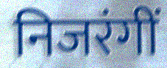
निजरंगीं